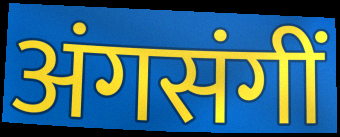
अंगसंगीं